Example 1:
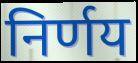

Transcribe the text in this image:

निर्णय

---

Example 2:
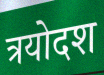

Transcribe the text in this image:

त्रयोदश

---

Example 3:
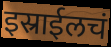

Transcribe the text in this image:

इस्राईलचं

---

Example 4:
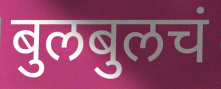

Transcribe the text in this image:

बुलबुलचं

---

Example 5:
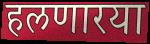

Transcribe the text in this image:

हलणारया